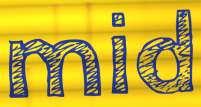
mid